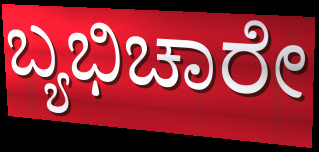
ಬ್ಯಭಿಚಾರೇ